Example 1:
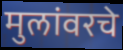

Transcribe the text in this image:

मुलांवरचे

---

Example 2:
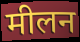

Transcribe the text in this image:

मीलन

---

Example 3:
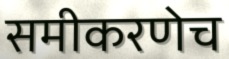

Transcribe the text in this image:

समीकरणेच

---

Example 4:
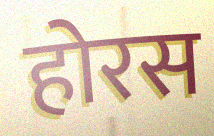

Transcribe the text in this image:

होरस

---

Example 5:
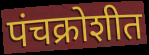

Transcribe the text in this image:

पंचक्रोशीत